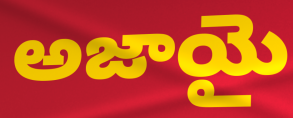
అజాయై